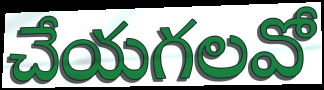
చేయగలవో